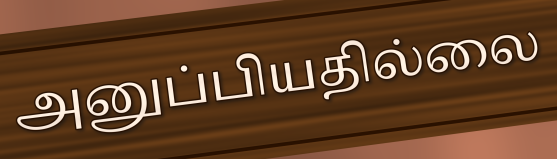
அனுப்பியதில்லை